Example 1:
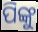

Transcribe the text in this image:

ପିଙ୍କୁ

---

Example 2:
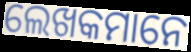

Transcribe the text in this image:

ଲେଖକମାନେ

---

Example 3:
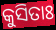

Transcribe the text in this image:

କୁସିତାଃ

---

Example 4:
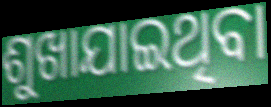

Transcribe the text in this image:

ଶୁଖାଯାଇଥିବା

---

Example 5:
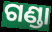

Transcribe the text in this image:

ଗଣ୍ଡା